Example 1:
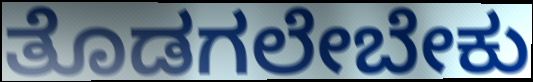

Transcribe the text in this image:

ತೊಡಗಲೇಬೇಕು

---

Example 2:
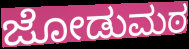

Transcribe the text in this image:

ಜೋಡುಮಠ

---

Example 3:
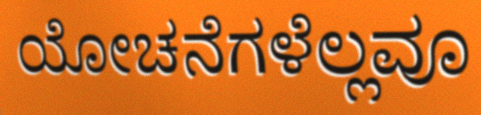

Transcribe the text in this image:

ಯೋಚನೆಗಳೆಲ್ಲವೂ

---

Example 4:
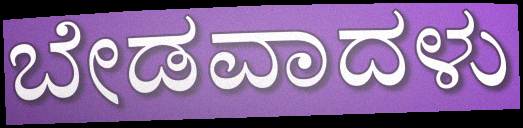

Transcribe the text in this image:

ಬೇಡವಾದಳು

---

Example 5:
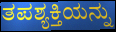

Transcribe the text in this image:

ತಪಶ್ಯಕ್ತಿಯನ್ನು